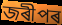
জৰীপৰ